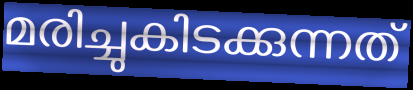
മരിച്ചുകിടക്കുന്നത്